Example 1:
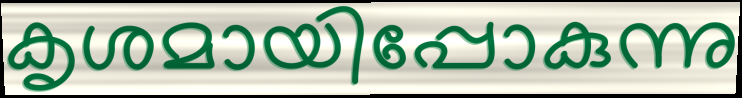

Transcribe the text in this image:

കൃശമായിപ്പോകുന്നു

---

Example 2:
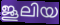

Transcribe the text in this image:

ജൂലിയ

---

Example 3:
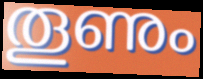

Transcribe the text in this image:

തൂണും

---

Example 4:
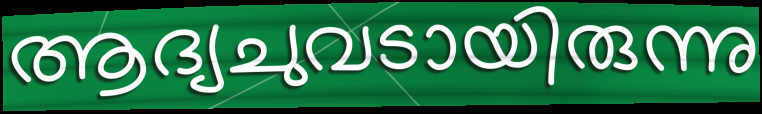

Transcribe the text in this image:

ആദ്യചുവടായിരുന്നു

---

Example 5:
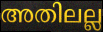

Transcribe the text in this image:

അതിലല്ല